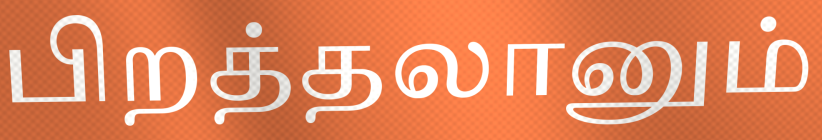
பிறத்தலானும்